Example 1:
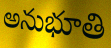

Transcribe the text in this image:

అనుభూతి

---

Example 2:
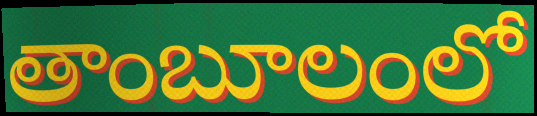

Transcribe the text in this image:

తాంబూలంలో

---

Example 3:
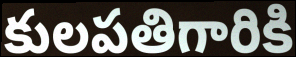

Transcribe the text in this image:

కులపతిగారికి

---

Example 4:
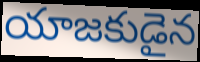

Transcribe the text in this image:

యాజకుడైన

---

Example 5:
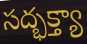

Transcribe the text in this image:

సద్భక్త్యా